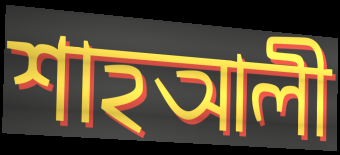
শাহআলী